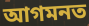
আগমনত